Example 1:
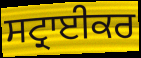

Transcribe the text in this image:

ਸਟ੍ਰਾਈਕਰ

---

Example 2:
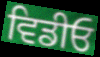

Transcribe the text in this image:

ਵਿਡੀਓ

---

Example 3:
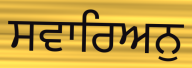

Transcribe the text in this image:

ਸਵਾਰਿਅਨੁ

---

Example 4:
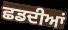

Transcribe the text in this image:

ਛਡਦੀਆਂ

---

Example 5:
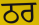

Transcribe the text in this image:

ਠਰ